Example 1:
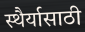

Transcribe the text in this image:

स्थैर्यासाठी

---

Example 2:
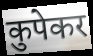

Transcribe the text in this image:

कुपेकर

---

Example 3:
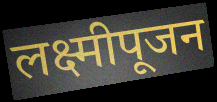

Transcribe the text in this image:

लक्ष्मीपूजन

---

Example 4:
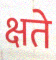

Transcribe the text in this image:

क्षते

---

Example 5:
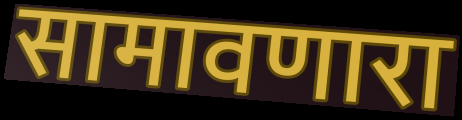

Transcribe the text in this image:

सामावणारा